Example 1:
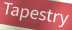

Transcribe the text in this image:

Tapestry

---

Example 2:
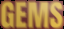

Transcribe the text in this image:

GEMS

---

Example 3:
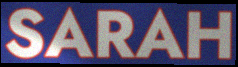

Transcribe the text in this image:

SARAH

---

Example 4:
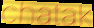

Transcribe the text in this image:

chatak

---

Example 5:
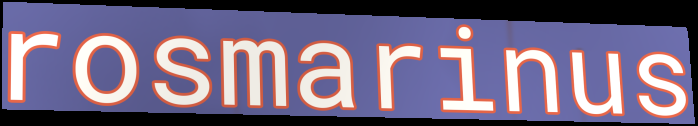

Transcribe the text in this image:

rosmarinus